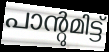
പാന്റുമിട്ട്